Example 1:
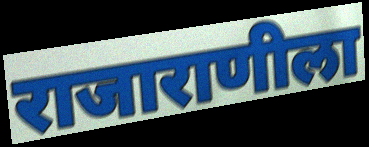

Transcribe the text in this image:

राजाराणीला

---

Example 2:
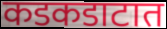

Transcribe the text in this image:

कडकडाटात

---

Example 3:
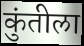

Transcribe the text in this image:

कुंतीला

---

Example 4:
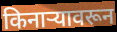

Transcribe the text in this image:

किनाऱ्यावरून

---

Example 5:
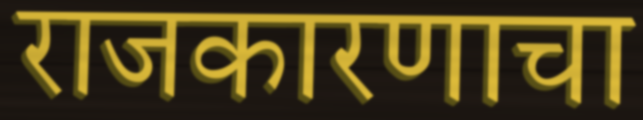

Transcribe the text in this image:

राजकारणाचा